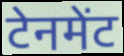
टेनमेंट